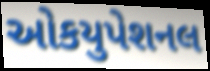
ઓકયુપેશનલ